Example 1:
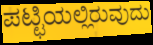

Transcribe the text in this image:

ಪಟ್ಟಿಯಲ್ಲಿರುವುದು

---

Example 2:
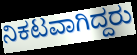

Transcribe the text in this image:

ನಿಕಟವಾಗಿದ್ದರು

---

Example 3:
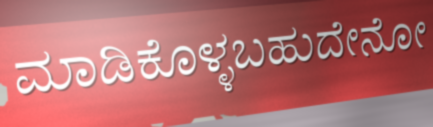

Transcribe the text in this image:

ಮಾಡಿಕೊಳ್ಳಬಹುದೇನೋ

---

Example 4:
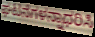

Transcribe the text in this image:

ಘಟನೆಗಳನ್ನಾಧರಿಸಿ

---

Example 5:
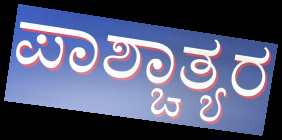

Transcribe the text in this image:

ಪಾಶ್ಚಾತ್ಯರ